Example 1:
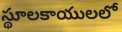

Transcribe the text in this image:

స్థూలకాయులలో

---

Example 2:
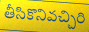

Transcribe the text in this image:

తీసికొనివచ్చిరి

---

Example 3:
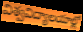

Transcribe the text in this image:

విశ్వవిద్యాలయాల్లో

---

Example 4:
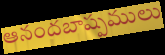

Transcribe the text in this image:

ఆనందబాష్పములు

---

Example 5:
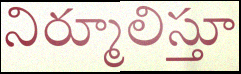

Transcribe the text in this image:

నిర్మూలిస్తూ